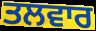
ਤਲਵਾਰ